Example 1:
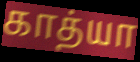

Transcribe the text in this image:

காத்யா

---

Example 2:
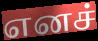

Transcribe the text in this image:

எனச்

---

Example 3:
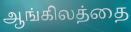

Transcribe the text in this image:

ஆங்கிலத்தை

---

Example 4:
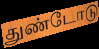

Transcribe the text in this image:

துண்டோடு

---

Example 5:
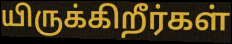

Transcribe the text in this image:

யிருக்கிறீர்கள்